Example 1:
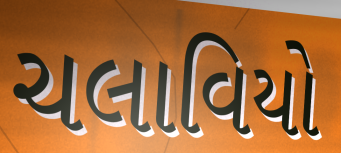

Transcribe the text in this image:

ચલાવિયો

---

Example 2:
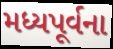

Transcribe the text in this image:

મધ્યપૂર્વના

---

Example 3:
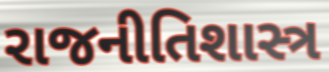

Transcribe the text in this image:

રાજનીતિશાસ્ત્ર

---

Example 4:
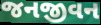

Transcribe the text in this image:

જનજીવન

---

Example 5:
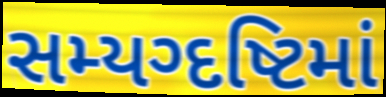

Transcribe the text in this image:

સમ્યગ્દષ્ટિમાં